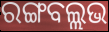
ରଙ୍ଗବଲ୍ଲଭ